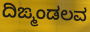
ದಿಙ್ಮಂಡಲವ